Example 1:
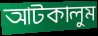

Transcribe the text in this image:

আটকালুম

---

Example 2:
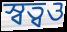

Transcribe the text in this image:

স্বত্বও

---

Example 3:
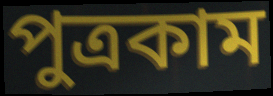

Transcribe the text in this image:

পুত্রকাম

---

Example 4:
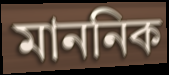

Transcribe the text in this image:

মাননিক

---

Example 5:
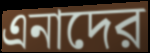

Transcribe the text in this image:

এনাদের